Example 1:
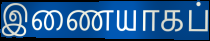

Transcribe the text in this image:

இணையாகப்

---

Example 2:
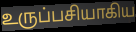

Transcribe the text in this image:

உருப்பசியாகிய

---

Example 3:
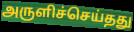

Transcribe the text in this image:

அருளிச்செய்தது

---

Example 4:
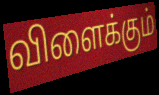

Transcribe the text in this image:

விளைக்கும்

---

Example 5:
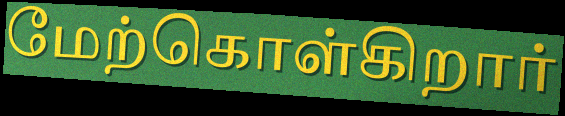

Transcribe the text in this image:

மேற்கொள்கிறார்